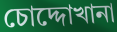
চোদ্দোখানা